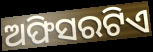
ଅଫିସରଟିଏ